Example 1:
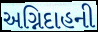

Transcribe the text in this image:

અગ્નિદાહની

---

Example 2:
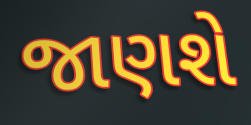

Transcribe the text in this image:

જાણશે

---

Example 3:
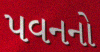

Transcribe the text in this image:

પવનનો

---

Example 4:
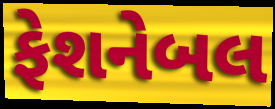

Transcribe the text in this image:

ફેશનેબલ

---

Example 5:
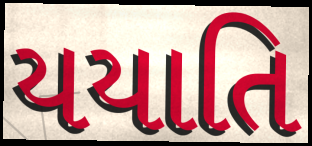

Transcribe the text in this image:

યયાતિ